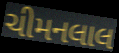
ચીમનલાલ